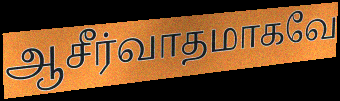
ஆசீர்வாதமாகவே